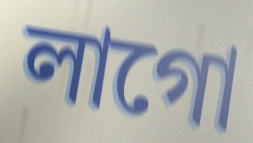
লাগো